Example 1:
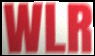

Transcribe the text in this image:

WLR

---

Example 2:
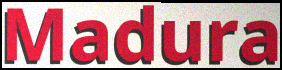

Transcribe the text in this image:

Madura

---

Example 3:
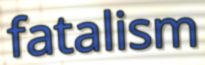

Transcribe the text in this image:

fatalism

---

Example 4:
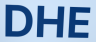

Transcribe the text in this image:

DHE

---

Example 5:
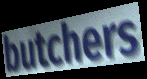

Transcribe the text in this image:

butchers